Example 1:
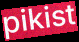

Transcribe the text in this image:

pikist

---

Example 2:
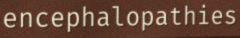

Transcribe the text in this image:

encephalopathies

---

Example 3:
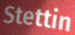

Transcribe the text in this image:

Stettin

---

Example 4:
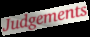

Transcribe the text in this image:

Judgements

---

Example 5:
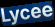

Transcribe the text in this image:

Lycee